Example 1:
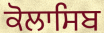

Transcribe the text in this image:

ਕੋਲਾਸਿਬ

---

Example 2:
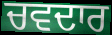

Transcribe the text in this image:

ਚਵਦਾਰ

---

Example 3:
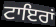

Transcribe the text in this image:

ਟਾਇਰਾਂ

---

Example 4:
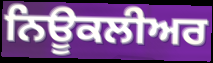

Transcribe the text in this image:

ਨਿਊਕਲੀਅਰ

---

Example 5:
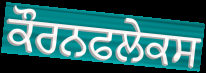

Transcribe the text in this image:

ਕੌਰਨਫਲੇਕਸ